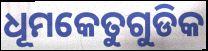
ଧୂମକେତୁଗୁଡିକ